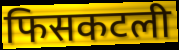
फिसकटली